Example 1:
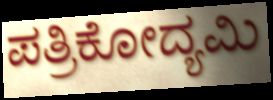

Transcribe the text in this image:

ಪತ್ರಿಕೋದ್ಯಮಿ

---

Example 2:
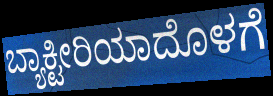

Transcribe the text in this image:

ಬ್ಯಾಕ್ಟೀರಿಯಾದೊಳಗೆ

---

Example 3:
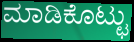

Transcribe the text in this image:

ಮಾಡಿಕೊಟ್ಟು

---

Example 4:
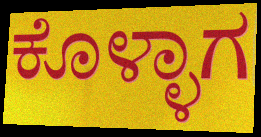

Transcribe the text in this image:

ಕೊಳ್ಳಾಗ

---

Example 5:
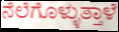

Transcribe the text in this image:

ನೆಲೆಗೊಳ್ಳುತ್ತಾಳೆ